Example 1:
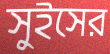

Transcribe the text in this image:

সুইসের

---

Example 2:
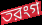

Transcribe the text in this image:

তরংগ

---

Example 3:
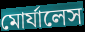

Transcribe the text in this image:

মোর্যালেস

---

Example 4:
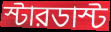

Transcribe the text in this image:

স্টারডাস্ট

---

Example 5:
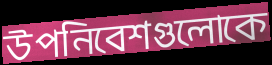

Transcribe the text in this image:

উপনিবেশগুলোকে